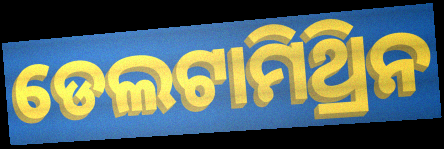
ଡେଲଟାମିଥ୍ରିନ